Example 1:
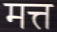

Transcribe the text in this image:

मत्त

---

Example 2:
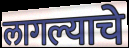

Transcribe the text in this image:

लागल्याचे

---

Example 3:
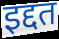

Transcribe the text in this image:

इद्दत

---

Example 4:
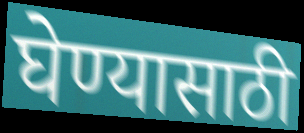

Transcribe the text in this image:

घेण्यासाठी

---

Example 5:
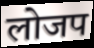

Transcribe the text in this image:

लोजप